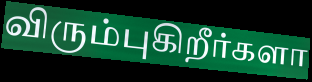
விரும்புகிறீர்களா